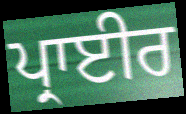
ਪ੍ਰਾਈਰ